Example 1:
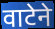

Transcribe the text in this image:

वाटेने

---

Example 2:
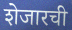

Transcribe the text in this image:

शेजारची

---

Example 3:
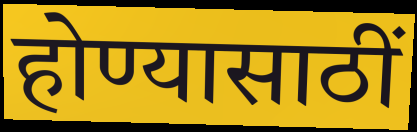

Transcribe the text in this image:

होण्यासाठीं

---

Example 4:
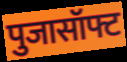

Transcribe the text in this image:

पुजासॉफ्ट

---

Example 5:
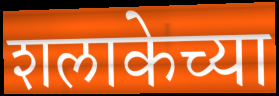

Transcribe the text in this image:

शलाकेच्या